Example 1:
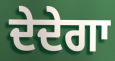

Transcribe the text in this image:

ਦੇਦੇਗਾ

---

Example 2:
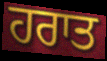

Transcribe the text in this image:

ਹਰਾਤ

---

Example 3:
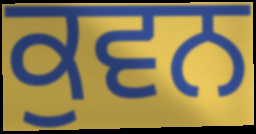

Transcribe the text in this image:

ਕੁਵਨ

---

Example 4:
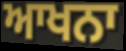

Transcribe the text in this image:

ਆਖਨਾ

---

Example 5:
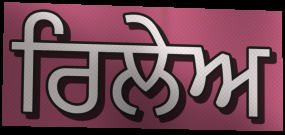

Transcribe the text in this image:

ਰਿਲੇਅ